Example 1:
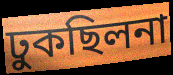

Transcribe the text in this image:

ঢুকছিলনা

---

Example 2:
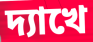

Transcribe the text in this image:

দ্যাখে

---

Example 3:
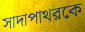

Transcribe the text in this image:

সাদাপাথরকে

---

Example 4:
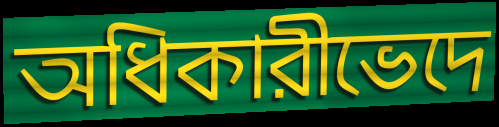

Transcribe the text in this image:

অধিকারীভেদে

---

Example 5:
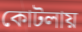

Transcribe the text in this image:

কোটলায়